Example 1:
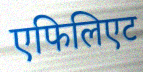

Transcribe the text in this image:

एफिलिएट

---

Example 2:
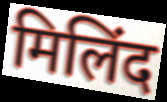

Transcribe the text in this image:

मिलिंद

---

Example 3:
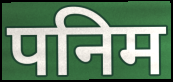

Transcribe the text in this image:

पनिम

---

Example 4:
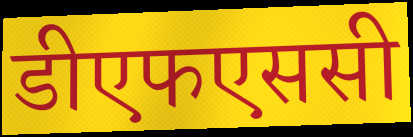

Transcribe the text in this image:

डीएफएससी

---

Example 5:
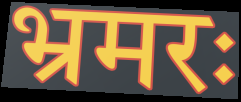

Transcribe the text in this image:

भ्रमरः